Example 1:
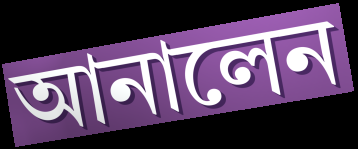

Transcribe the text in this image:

আনালেন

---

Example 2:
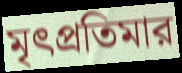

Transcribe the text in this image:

মৃৎপ্রতিমার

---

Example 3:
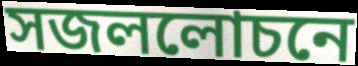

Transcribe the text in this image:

সজললোচনে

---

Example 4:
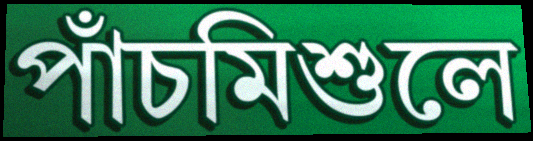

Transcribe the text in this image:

পাঁচমিশুলে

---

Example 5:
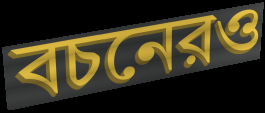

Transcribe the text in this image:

বচনেরও